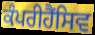
ਕੰਪਰੀਹੈਂਸਿਵ